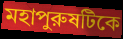
মহাপুরুষটিকে